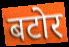
बटोर